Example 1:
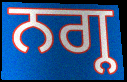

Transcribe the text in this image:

ਨਗ੍ਨ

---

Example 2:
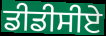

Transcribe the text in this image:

ਡੀਡੀਸੀਏ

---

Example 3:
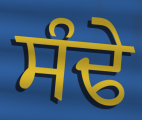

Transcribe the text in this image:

ਸੰਢੇ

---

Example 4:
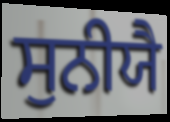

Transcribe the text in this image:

ਸੁਨੀਯੈ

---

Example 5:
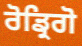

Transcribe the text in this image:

ਰੋਡ੍ਰਿਗੋ